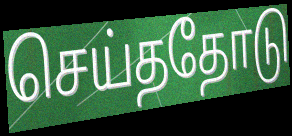
செய்ததோடு